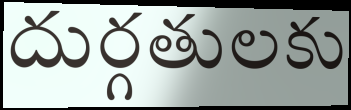
దుర్గతులకు